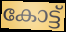
കോട്ട്